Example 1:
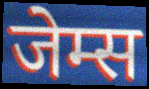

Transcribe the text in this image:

जेम्स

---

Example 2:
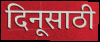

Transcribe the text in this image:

दिनूसाठी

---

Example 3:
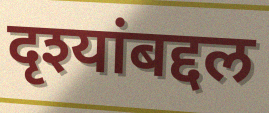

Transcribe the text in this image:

दृश्यांबद्दल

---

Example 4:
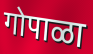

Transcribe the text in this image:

गोपाळा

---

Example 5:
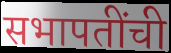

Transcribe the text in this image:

सभापतींची